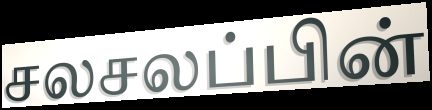
சலசலப்பின்